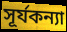
সূর্যকন্যা